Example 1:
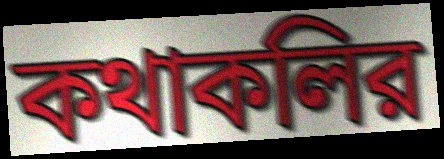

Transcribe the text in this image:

কথাকলির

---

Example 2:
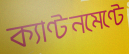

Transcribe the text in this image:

ক্যাণ্টনমেণ্টে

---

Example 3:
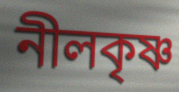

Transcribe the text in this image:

নীলকৃষ্ণ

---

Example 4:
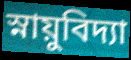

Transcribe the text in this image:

স্নায়ুবিদ্যা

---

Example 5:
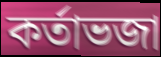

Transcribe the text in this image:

কর্তাভজা